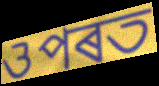
ওপৰত